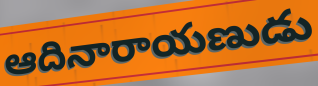
ఆదినారాయణుడు